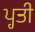
ਪ੍ਹਤੀ